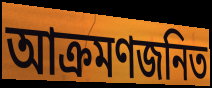
আক্রমণজনিত